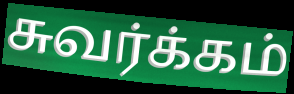
சுவர்க்கம்